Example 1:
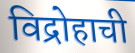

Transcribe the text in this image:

विद्रोहाची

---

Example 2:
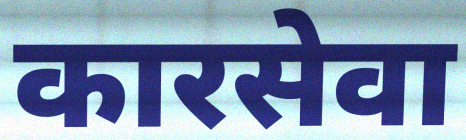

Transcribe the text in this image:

कारसेवा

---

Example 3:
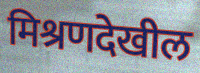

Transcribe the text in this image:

मिश्रणदेखील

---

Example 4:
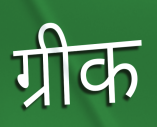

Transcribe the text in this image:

ग्रीक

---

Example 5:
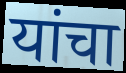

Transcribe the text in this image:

यांचा